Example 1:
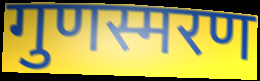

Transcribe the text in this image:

गुणस्मरण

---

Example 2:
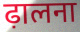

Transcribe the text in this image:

ढ़ालना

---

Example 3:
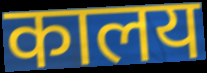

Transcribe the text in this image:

कालय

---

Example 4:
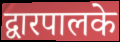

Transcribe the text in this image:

द्वारपालके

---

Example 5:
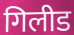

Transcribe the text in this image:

गिलीड